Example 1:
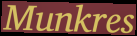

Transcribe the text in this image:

Munkres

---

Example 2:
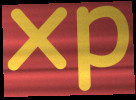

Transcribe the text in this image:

xp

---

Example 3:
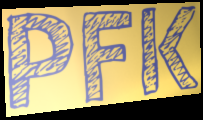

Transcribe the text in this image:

PFK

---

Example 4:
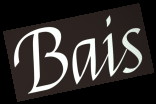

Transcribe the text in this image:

Bais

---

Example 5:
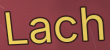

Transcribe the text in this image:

Lach